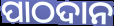
ପାଠଦାନ